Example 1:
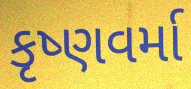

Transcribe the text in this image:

કૃષ્ણવર્મા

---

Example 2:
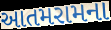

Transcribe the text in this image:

આતમરામના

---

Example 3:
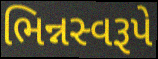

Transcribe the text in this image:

ભિન્નસ્વરૂપે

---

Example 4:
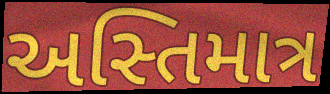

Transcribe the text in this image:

અસ્તિમાત્ર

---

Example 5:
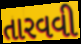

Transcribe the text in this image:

તારવવી